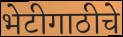
भेटीगाठीचे